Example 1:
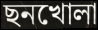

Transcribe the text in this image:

ছনখোলা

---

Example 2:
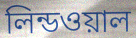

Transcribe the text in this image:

লিন্ডওয়াল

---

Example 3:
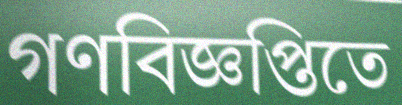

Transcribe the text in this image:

গণবিজ্ঞপ্তিতে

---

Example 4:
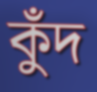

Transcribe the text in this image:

কুঁদ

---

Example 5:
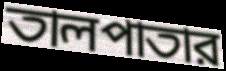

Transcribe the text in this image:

তালপাতার